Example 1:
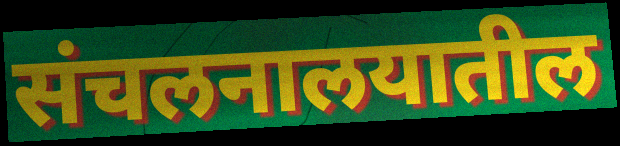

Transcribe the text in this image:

संचलनालयातील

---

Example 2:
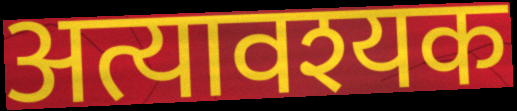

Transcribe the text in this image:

अत्यावश्यक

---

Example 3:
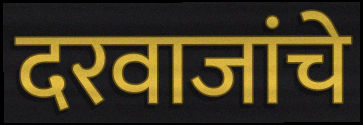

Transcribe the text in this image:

दरवाजांचे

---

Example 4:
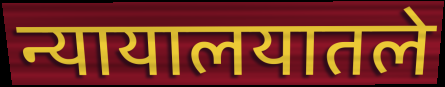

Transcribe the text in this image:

न्यायालयातले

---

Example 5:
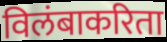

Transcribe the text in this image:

विलंबाकरिता